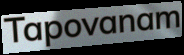
Tapovanam